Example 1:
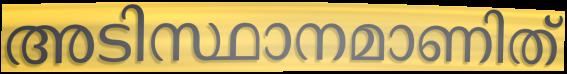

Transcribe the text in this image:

അടിസ്ഥാനമാണിത്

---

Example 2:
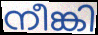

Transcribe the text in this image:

നീങ്കി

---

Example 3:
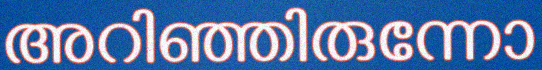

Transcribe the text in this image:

അറിഞ്ഞിരുന്നോ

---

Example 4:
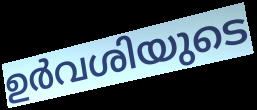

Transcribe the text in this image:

ഉർവശിയുടെ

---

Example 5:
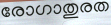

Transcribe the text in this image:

രോഗാതുരത